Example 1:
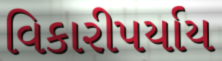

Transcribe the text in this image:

વિકારીપર્યાય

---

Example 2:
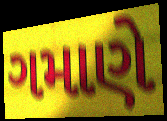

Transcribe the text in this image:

ગમાણે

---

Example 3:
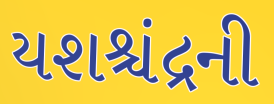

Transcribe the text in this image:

યશશ્ચંદ્રની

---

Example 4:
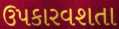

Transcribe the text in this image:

ઉપકારવશતા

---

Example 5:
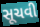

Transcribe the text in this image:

સૂચવી